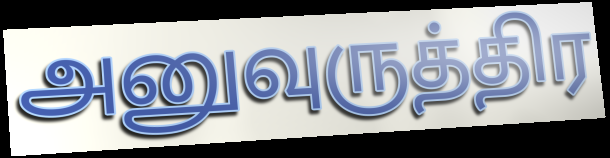
அனுவுருத்திர